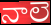
నాలె